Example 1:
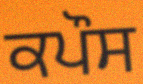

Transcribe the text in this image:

ਕਪੌਸ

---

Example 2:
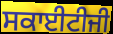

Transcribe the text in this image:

ਸਕਾਈਟੀਜੀ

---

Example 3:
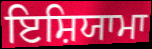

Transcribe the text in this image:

ਇਸ਼ਿਯਾਮਾ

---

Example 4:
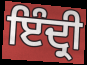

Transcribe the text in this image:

ਇੰਦ੍ਰੀ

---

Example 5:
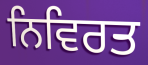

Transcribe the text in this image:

ਨਿਵਿਰਤ